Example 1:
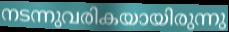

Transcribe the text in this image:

നടന്നുവരികയായിരുന്നു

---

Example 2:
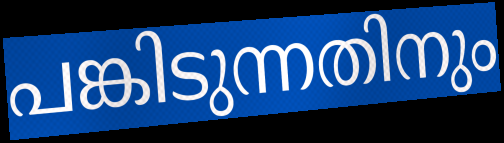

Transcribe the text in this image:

പങ്കിടുന്നതിനും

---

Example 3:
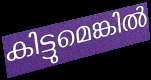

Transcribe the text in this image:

കിട്ടുമെങ്കിൽ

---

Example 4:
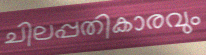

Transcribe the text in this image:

ചിലപ്പതികാരവും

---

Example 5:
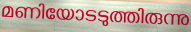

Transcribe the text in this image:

മണിയോടടുത്തിരുന്നു